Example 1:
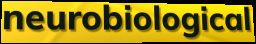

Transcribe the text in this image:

neurobiological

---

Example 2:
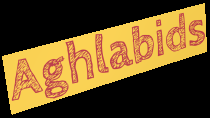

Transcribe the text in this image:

Aghlabids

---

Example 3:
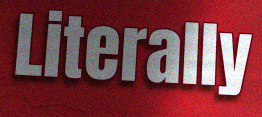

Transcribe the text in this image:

Literally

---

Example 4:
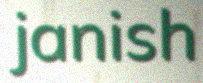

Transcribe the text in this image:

janish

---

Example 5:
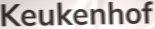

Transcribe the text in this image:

Keukenhof